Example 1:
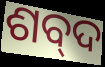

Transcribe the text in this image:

ଶବ୍‍ଦ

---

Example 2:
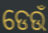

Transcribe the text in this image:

ଡେଉଁ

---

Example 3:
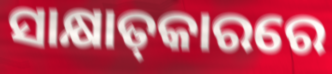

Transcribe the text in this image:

ସାକ୍ଷାତ୍‌କାରରେ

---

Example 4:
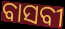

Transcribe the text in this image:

ବାସବୀ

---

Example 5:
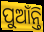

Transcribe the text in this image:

ପୁଆଁନ୍ତି